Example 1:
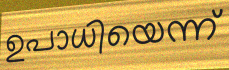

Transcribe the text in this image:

ഉപാധിയെന്ന്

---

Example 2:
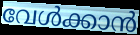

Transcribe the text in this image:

വേൾക്കാൻ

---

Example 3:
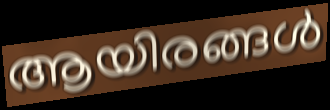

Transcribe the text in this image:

ആയിരങ്ങൾ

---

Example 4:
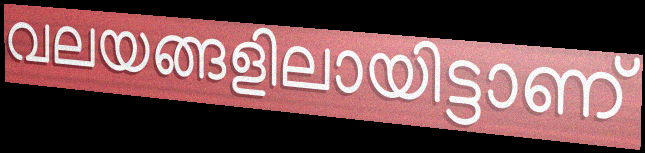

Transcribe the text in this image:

വലയങ്ങളിലായിട്ടാണ്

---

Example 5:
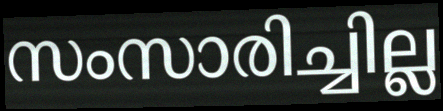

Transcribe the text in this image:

സംസാരിച്ചില്ല